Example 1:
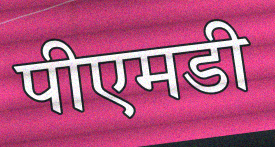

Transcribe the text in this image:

पीएमडी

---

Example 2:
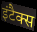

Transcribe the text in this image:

इंटैक्स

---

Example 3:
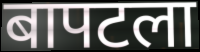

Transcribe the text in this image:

बापटला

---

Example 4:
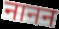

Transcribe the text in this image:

नानन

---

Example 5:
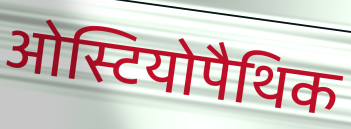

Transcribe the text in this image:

ओस्टियोपैथिक